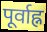
पूर्वाह्न